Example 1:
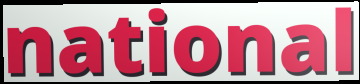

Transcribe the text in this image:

national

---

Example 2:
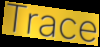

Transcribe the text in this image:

Trace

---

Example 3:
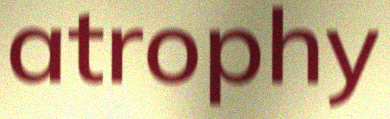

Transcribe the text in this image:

atrophy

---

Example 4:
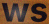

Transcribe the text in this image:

ws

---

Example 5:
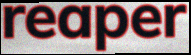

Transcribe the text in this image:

reaper